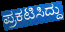
ಪ್ರಕಟಿಸಿದ್ದು